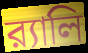
র‍্যালি